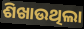
ଶିଖାଉଥିଲା